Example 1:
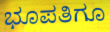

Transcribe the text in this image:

ಭೂಪತಿಗೂ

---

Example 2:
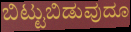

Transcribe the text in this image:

ಬಿಟ್ಟುಬಿಡುವುದೂ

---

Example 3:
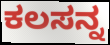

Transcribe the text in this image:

ಕಲಸನ್ನ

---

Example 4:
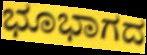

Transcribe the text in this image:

ಭೂಭಾಗದ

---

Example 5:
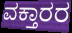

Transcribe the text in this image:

ವಕ್ತಾರರ